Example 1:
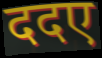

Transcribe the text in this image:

ददए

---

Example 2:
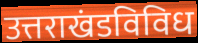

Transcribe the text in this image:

उत्तराखंडविविध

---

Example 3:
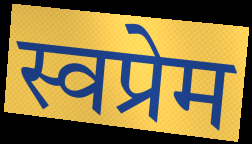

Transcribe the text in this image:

स्वप्रेम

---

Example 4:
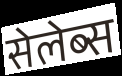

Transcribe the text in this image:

सेलेब्स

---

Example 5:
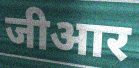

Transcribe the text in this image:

जीआर